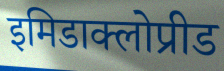
इमिडाक्लोप्रीड